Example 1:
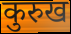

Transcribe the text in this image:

कुरुख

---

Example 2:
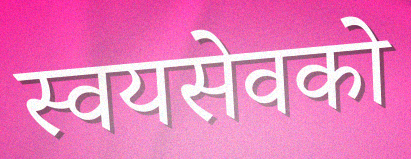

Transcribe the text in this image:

स्वयसेवको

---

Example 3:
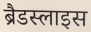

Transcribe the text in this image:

ब्रैडस्लाइस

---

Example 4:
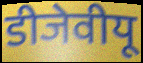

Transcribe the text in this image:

डीजेवीयू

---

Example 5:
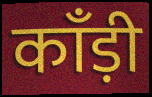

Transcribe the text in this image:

काँड़ी